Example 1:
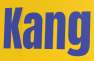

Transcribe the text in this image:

Kang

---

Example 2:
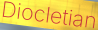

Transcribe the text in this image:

Diocletian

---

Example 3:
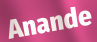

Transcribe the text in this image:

Anande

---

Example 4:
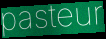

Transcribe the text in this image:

pasteur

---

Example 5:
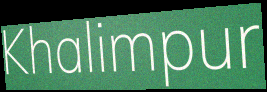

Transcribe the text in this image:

Khalimpur